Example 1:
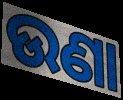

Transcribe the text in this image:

ଉଣା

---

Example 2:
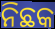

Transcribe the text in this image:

ନିଛକ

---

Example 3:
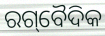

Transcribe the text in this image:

ରଗ୍‌ବୈଦିକ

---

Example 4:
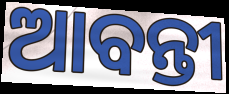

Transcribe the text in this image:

ଆବନ୍ତୀ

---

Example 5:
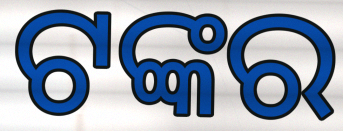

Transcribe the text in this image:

ଟଙ୍କର